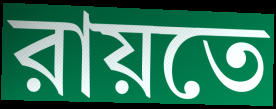
রায়তে